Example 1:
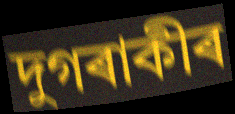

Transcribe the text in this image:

দুগৰাকীৰ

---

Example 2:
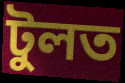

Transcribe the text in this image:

টুলত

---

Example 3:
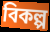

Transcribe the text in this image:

বিকল্প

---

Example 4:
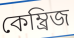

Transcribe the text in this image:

কেম্ব্ৰিজ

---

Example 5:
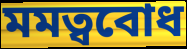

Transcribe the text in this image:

মমত্ববোধ